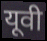
यूवी